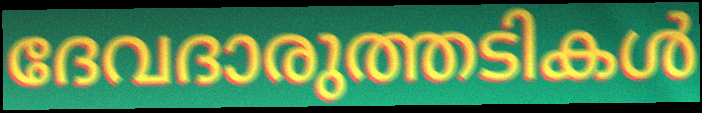
ദേവദാരുത്തടികൾ